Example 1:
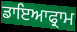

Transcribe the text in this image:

ਡਾਇਆਫ੍ਰਾਮ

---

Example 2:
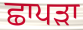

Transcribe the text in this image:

ਛਾਪੜਾ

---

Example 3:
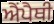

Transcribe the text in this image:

ਐਂਪੈਥੀ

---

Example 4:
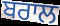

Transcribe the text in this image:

ਬਰਾਲ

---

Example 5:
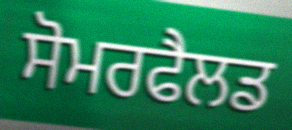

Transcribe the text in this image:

ਸੋਮਰਫੈਲਡ